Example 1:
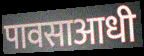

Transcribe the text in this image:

पावसाआधी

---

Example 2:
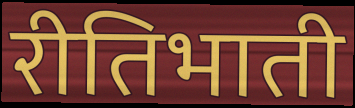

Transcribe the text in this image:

रीतिभाती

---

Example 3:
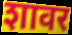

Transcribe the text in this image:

शावर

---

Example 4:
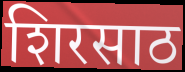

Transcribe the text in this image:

शिरसाठ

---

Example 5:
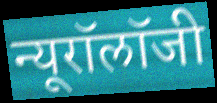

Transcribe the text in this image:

न्यूरॉलॉजी